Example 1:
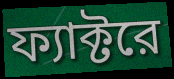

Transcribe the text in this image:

ফ্যাক্টরে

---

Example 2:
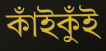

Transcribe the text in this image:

কাঁইকুঁই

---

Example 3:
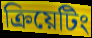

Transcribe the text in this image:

ক্রিয়েটিং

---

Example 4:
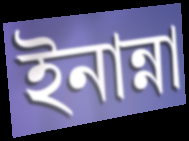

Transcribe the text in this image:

ইনান্না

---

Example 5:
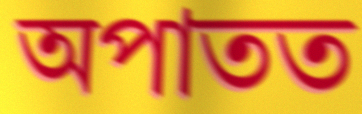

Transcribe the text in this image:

অপাতত